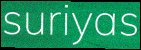
suriyas